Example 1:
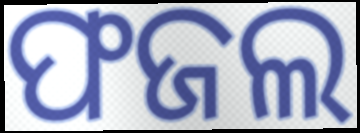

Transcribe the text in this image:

ଫଜଲ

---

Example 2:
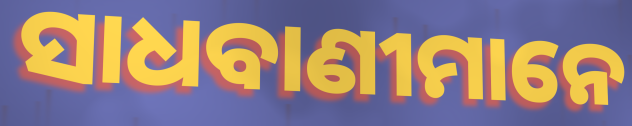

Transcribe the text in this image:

ସାଧବାଣୀମାନେ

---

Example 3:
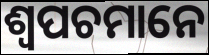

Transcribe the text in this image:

ଶ୍ୱପଚମାନେ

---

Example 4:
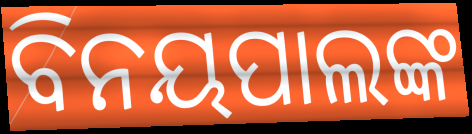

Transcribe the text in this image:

ବିନୟପାଲଙ୍କ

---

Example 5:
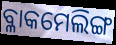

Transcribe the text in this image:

ବ୍ଳାକମେଲିଙ୍ଗ